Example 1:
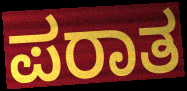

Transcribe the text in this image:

ಪರಾತ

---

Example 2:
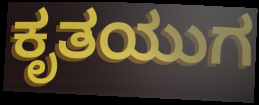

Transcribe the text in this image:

ಕೃತಯುಗ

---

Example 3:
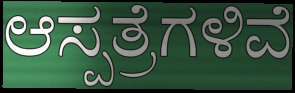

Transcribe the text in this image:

ಆಸ್ಪತ್ರೆಗಳಿವೆ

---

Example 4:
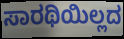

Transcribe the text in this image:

ಸಾರಥಿಯಿಲ್ಲದ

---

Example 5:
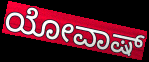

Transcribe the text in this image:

ಯೋವಾಷ್